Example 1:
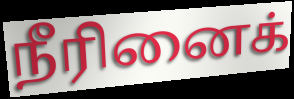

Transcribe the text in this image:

நீரினைக்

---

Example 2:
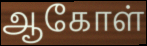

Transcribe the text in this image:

ஆகோள்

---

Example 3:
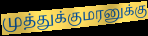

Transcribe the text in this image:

முத்துக்குமரனுக்கு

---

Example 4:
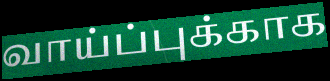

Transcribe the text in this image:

வாய்ப்புக்காக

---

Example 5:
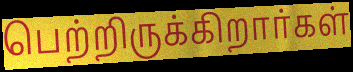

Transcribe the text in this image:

பெற்றிருக்கிறார்கள்